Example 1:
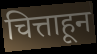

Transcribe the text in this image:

चित्ताहून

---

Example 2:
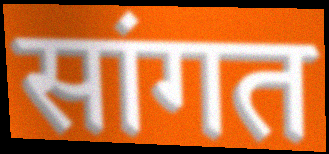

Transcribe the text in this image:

सांगत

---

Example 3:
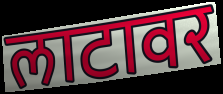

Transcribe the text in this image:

लाटावर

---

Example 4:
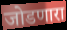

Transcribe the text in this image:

जोडणारा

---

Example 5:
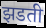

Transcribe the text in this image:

झडती